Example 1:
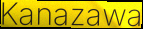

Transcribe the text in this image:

Kanazawa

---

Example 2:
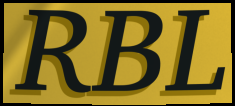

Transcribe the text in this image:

RBL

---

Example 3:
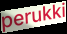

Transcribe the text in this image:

perukki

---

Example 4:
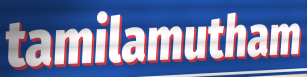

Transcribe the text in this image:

tamilamutham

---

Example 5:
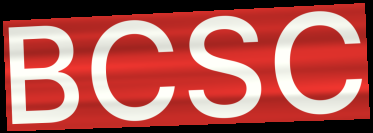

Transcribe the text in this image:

BCSC